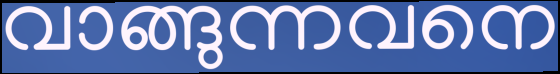
വാങ്ങുന്നവനെ